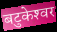
बटुकेश्‍वर